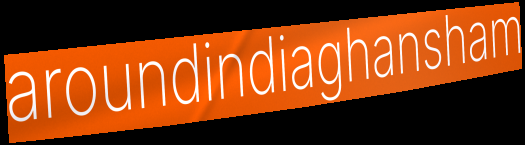
aroundindiaghansham